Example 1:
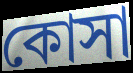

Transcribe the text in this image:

কোসা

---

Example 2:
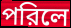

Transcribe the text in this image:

পরিলে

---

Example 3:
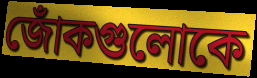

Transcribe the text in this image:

জোঁকগুলোকে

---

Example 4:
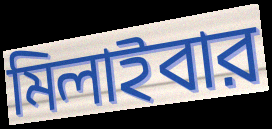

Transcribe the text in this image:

মিলাইবার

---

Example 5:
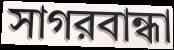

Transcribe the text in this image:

সাগরবান্ধা